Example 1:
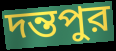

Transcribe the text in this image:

দন্তপুর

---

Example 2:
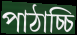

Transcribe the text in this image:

পাঠাচ্চি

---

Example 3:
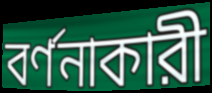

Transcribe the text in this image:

বর্ণনাকারী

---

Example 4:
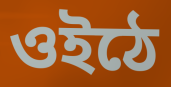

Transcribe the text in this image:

ওইঠে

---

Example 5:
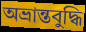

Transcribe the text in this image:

অভ্রান্তবুদ্ধি